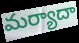
మర్యాదా